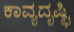
ಕಾವ್ಯದೃಷ್ಟಿ